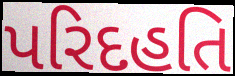
પરિદહતિ